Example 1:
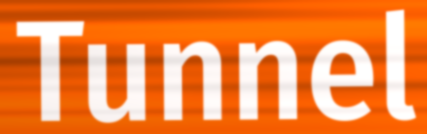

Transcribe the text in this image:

Tunnel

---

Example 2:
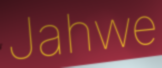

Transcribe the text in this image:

Jahwe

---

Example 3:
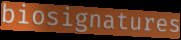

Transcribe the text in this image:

biosignatures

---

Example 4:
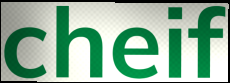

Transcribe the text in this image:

cheif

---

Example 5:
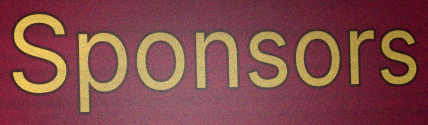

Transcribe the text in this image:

Sponsors